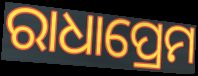
ରାଧାପ୍ରେମ